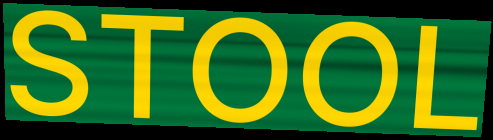
STOOL